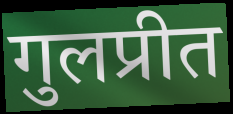
गुलप्रीत